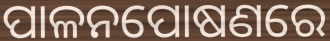
ପାଳନପୋଷଣରେ